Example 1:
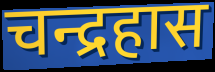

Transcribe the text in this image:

चन्द्रहास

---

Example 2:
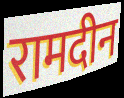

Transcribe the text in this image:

रामदीन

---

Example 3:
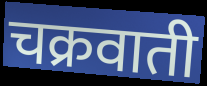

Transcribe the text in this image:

चक्रवाती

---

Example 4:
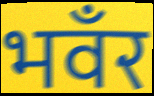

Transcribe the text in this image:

भवँर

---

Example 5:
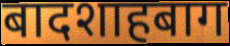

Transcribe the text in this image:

बादशाहबाग